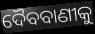
ଦୈବବାଣୀକୁ